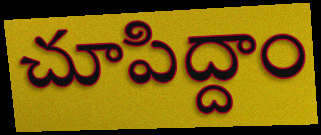
చూపిద్దాం